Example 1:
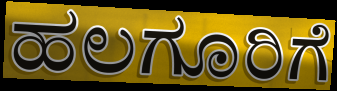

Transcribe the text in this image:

ಹಲಗೂರಿಗೆ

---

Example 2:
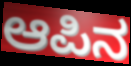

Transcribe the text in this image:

ಆಪಿನ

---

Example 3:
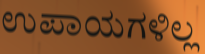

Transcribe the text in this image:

ಉಪಾಯಗಳಿಲ್ಲ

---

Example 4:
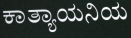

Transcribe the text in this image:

ಕಾತ್ಯಾಯನಿಯ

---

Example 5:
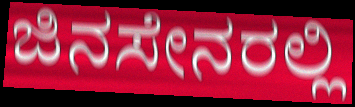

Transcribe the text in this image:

ಜಿನಸೇನರಲ್ಲಿ